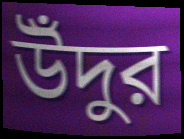
উঁদুর